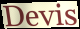
Devis